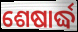
ଶେଷାର୍ଦ୍ଧ